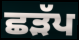
ਛੜੱਪ